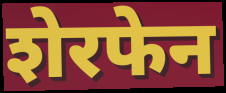
शेरफेन